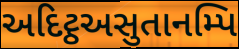
અદિટ્ઠઅસુતાનમ્પિ